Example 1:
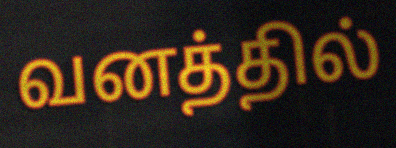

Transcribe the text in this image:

வனத்தில்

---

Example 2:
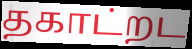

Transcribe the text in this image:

தகாட்றட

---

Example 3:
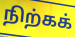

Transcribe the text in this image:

நிற்கக்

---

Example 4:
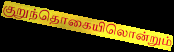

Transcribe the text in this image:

குறுந்தொகையிலொன்றும்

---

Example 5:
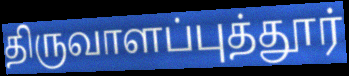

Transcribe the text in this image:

திருவாளப்புத்தூர்